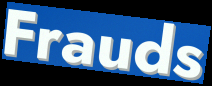
Frauds